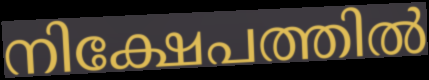
നിക്ഷേപത്തിൽ